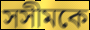
সসীমকে